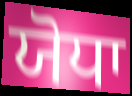
ਯੋਧਾ